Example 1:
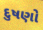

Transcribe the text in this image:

દુષણો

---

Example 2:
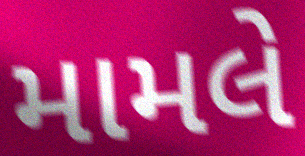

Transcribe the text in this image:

મામલે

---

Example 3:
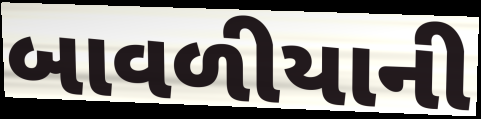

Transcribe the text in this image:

બાવળીયાની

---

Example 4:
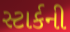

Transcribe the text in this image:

સ્ટાર્કની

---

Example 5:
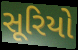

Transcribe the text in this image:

સૂરિયો